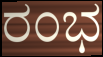
ರಂಭ